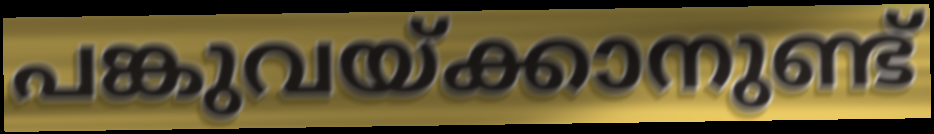
പങ്കുവയ്ക്കാനുണ്ട്